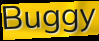
Buggy